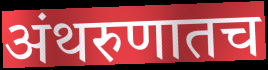
अंथरुणातच